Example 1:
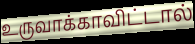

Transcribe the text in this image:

உருவாக்காவிட்டால்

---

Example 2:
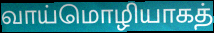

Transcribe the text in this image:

வாய்மொழியாகத்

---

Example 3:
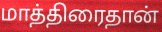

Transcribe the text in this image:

மாத்திரைதான்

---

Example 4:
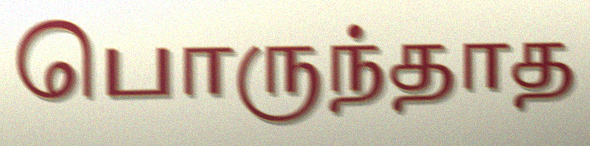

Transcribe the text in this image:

பொருந்தாத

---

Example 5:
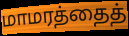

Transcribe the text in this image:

மாமரத்தைத்